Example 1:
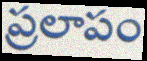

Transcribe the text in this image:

ప్రలాపం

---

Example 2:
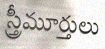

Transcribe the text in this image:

స్త్రీమూర్తులు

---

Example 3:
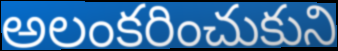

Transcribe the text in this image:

అలంకరించుకుని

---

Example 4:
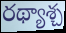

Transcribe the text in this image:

రథ్యాశ్చ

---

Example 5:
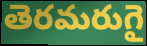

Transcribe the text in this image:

తెరమరుగై